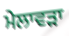
ਮੇਲਾਵੜਾ